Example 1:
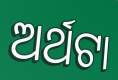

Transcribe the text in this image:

ଅର୍ଥଟା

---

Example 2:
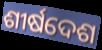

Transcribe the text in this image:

ଶୀର୍ଷଦେଶ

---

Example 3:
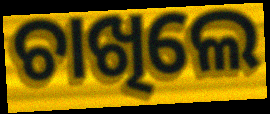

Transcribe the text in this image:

ଚାଖିଲେ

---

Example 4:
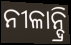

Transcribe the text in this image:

ନୀଳାନ୍ଦ୍ରି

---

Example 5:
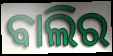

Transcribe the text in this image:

ବାଲିର